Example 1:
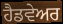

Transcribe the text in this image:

ਹੈਡਵੇਅਰ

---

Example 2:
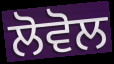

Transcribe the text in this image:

ਲੋਵੋਲ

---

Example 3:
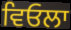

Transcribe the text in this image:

ਵਿਓਲਾ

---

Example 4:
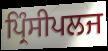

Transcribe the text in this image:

ਪ੍ਰਿੰਸੀਪਲਜ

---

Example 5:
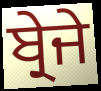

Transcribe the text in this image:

ਬ੍ਰੇਜੇ